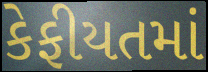
કેફીયતમાં